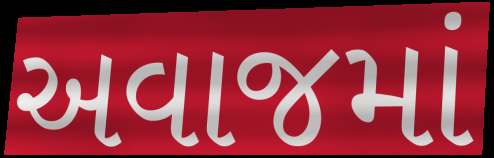
અવાજમાં